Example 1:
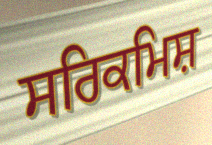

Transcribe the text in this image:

ਸਰਿਕਮਿਸ਼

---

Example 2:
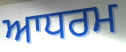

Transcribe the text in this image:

ਆਧਰਮ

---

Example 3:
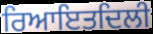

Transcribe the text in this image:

ਰਿਆਇਤਦਿਲੀ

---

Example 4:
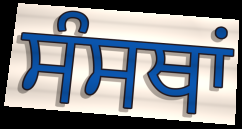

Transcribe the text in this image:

ਸੰਸਥਾਂ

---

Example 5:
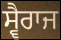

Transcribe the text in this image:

ਸ੍ਵੈਰਾਜ